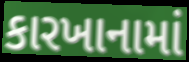
કારખાનામાં